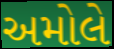
અમોલે